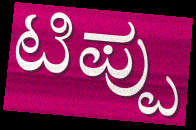
ಟಿಪ್ಪು